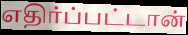
எதிர்ப்பட்டான்